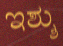
ಇಶ್ಶು